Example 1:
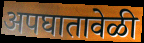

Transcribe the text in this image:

अपघातावेळी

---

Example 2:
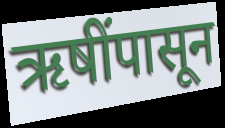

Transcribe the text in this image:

ऋषींपासून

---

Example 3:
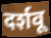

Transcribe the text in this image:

दर्शवू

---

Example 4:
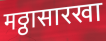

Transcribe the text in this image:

मठ्ठासारखा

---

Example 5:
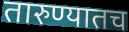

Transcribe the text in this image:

तारुण्यातच